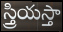
స్త్రియస్తా